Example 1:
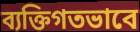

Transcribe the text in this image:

ব্যক্তিগতভাবে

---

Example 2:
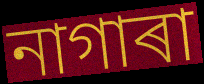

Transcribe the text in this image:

নাগাৰা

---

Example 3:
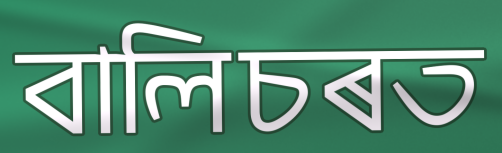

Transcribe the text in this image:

বালিচৰত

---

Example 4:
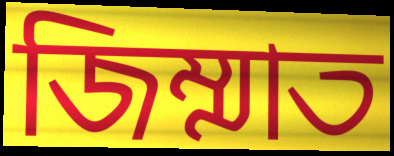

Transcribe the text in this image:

জিম্মাত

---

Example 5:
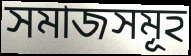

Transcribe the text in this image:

সমাজসমূহ